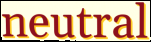
neutral